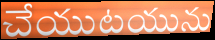
చేయుటయును